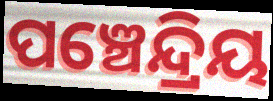
ପଞ୍ଚେନ୍ଦ୍ରିୟ